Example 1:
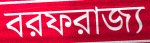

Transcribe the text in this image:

বরফরাজ্য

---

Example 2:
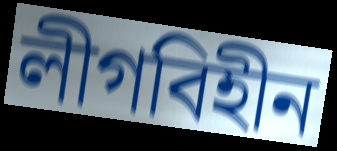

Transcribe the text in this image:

লীগবিহীন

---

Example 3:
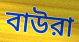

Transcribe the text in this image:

বাউরা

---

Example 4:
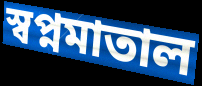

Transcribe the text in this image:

স্বপ্নমাতাল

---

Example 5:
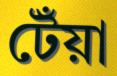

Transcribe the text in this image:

টেঁয়া